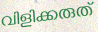
വിളിക്കരുത്